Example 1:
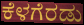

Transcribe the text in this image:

ಕೆಳಗೆರಡು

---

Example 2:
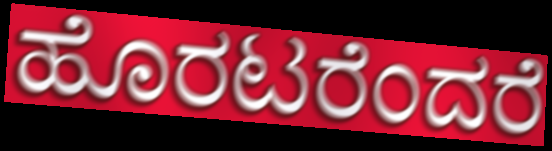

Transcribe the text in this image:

ಹೊರಟರೆಂದರೆ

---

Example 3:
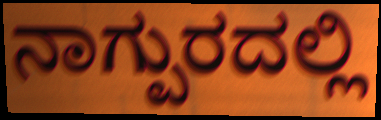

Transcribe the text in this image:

ನಾಗ್ಪುರದಲ್ಲಿ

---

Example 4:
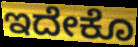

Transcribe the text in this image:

ಇದೇಕೊ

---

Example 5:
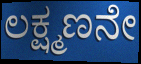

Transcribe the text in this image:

ಲಕ್ಷ್ಮಣನೇ